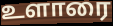
உளாரை